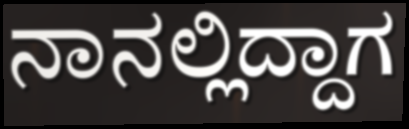
ನಾನಲ್ಲಿದ್ದಾಗ